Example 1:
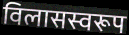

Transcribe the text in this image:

विलासस्वरूप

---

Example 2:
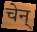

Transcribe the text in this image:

चेन्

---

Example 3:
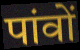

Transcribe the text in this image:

पांवों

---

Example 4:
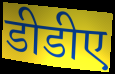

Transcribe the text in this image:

डीडीए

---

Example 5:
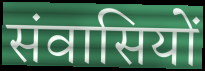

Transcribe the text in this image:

संवासियों